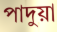
পাদুয়া